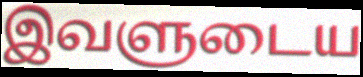
இவளுடைய